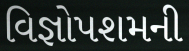
વિજ્ઞોપશમની